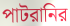
পাটরানির